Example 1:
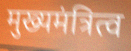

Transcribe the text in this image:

मुख्यमंत्रित्व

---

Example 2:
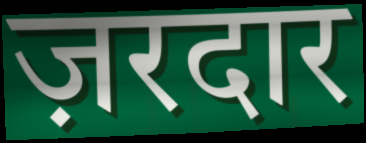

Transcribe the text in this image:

ज़रदार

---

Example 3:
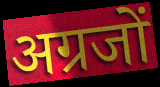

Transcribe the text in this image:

अग्रजों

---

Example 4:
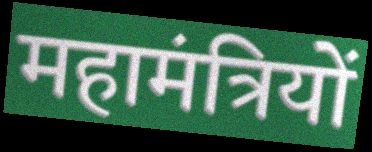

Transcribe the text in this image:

महामंत्रियों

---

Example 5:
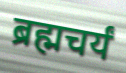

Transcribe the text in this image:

ब्रह्मचर्यं